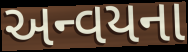
અન્વયના